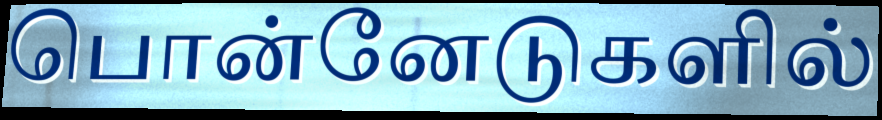
பொன்னேடுகளில்